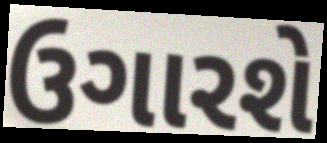
ઉગારશે